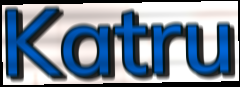
Katru